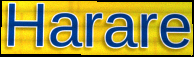
Harare